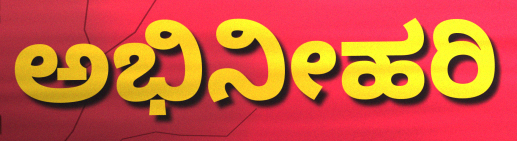
ಅಭಿನೀಹರಿ